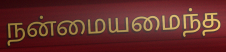
நன்மையமைந்த